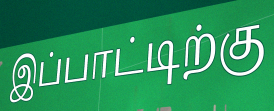
இப்பாட்டிற்கு